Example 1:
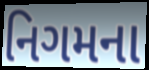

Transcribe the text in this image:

નિગમના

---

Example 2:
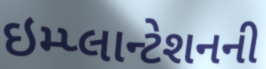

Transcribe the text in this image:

ઇમ્પ્લાન્ટેશનની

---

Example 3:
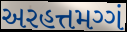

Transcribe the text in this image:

અરહત્તમગ્ગં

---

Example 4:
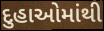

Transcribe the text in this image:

દુહાઓમાંથી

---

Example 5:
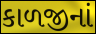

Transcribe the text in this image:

કાળજીનાં